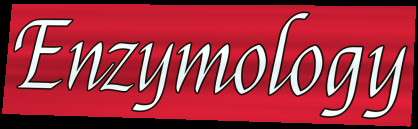
Enzymology